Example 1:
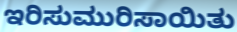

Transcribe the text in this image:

ಇರಿಸುಮುರಿಸಾಯಿತು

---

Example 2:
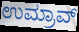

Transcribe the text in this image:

ಉಮ್ರಾವ್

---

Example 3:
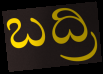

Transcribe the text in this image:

ಬದ್ರಿ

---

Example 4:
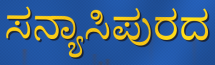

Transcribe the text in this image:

ಸನ್ಯಾಸಿಪುರದ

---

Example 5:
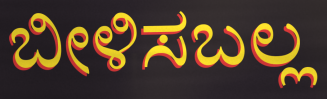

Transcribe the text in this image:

ಬೀಳಿಸಬಲ್ಲ